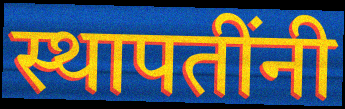
स्थापतींनी